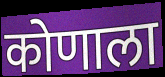
कोणाला